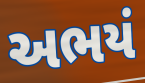
અભયં